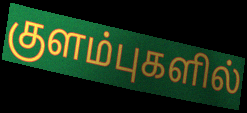
குளம்புகளில்